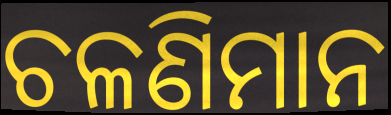
ଚଳଣିମାନ